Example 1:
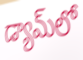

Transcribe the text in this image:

డ్యామ్‌లో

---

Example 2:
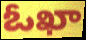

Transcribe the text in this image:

ఓఖా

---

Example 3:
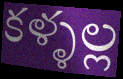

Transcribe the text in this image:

కళ్ళల్ల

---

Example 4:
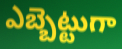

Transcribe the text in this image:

ఎబ్బెట్టుగా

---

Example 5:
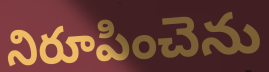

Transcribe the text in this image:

నిరూపించెను